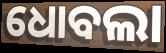
ଧୋବଲା